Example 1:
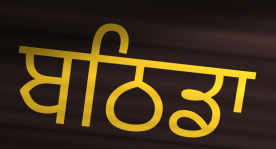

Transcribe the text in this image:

ਬਠਿਡਾ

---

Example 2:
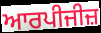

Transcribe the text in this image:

ਆਰਪੀਜੀਜ਼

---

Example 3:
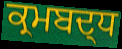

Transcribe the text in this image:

ਕ੍ਰਮਬਦ੍ਧ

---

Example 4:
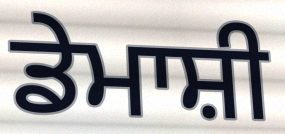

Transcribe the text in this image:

ਡੇਮਾਸ਼ੀ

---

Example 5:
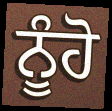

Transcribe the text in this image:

ਨੂੰਹੋ